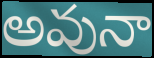
అవునా